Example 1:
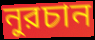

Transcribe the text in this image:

নুরচান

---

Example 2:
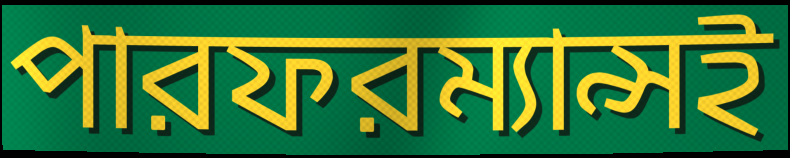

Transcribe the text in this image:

পারফরম্যান্সই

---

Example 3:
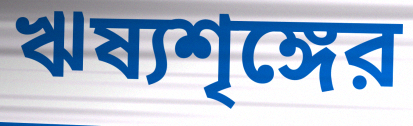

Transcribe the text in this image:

ঋষ্যশৃঙ্গের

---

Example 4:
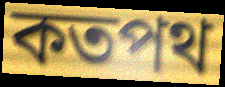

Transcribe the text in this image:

কতপথ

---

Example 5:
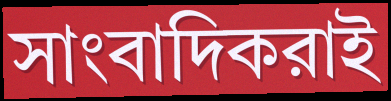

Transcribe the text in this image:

সাংবাদিকরাই